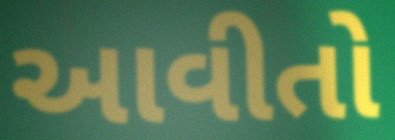
આવીતો